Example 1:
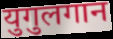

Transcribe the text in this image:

युगुलगान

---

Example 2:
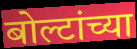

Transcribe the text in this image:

बोल्टांच्या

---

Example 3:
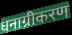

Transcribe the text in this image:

धनाग्रीकरण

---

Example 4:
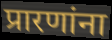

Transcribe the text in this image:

प्रारणांना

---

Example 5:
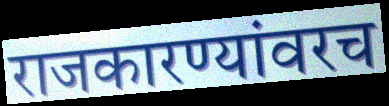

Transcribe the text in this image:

राजकारण्यांवरच